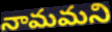
నామమని